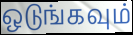
ஒடுங்கவும்